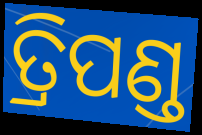
ତ୍ରିପଣ୍ଡ